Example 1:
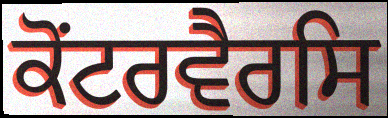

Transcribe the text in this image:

ਕੋਂਟਰਵੈਰਸਿ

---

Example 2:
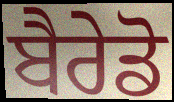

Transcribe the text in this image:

ਬੈਰੇਡੋ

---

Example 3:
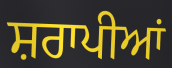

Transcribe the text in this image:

ਸ਼ਰਾਪੀਆਂ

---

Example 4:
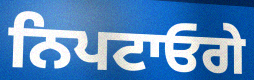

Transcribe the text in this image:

ਨਿਪਟਾਓਗੇ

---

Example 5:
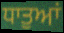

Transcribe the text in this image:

ਧਾਤੁਆਂ